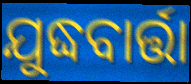
ଯୁଦ୍ଧବାର୍ତ୍ତା